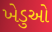
ખેડુઓ